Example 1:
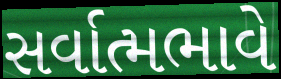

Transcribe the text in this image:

સર્વાત્મભાવે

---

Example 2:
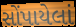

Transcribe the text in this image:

સોંપાયેલાં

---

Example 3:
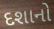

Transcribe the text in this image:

દશાનો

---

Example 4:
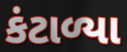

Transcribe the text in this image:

કંટાળ્યા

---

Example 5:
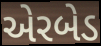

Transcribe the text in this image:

એરબેડ